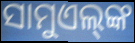
ସାମୁଏଲ୍‌ଙ୍କ